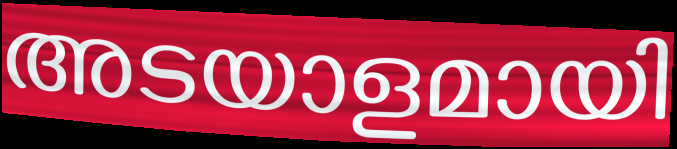
അടയാളമായി